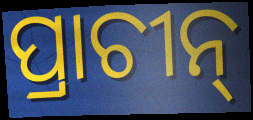
ପ୍ରାଚୀନ୍